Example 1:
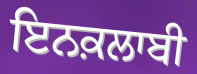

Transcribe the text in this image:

ਇਨਕ਼ਲਾਬੀ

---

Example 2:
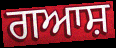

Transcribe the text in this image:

ਗਆਸ਼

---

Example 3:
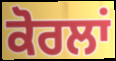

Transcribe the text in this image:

ਕੋਰਲਾਂ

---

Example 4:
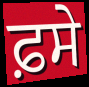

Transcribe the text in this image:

ਫ਼ਸੇ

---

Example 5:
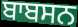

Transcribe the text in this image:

ਬਾਬਸਨ